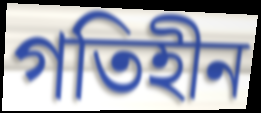
গতিহীন